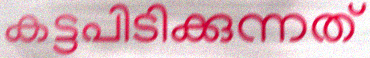
കട്ടപിടിക്കുന്നത്